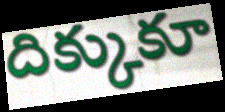
దిక్కుకూ